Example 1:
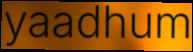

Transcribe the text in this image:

yaadhum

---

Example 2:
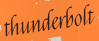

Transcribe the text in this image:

thunderbolt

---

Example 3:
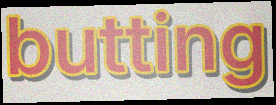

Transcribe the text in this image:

butting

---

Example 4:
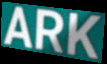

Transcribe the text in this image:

ARK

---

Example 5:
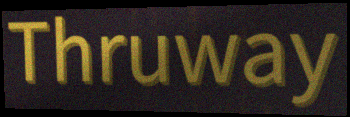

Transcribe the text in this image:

Thruway